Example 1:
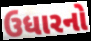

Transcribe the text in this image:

ઉધારનો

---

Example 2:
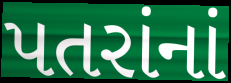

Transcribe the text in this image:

પતરાંનાં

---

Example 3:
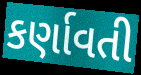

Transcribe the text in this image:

કર્ણાવતી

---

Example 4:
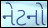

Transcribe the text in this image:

નેટનો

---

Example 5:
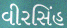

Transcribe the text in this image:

વીરસિંહ